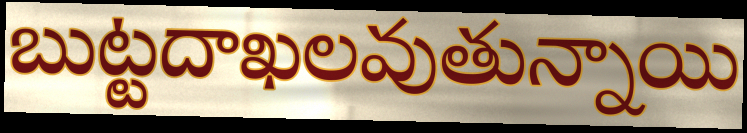
బుట్టదాఖలవుతున్నాయి